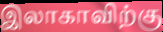
இலாகாவிற்கு